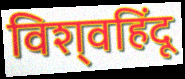
विश्वहिंदू